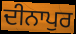
ਦੀਨਾਪੁਰ